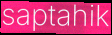
saptahik